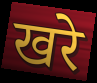
खरे